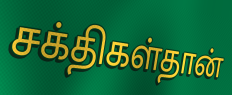
சக்திகள்தான்